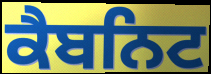
ਕੈਬਨਿਟ